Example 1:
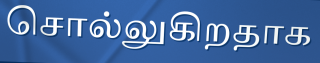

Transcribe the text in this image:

சொல்லுகிறதாக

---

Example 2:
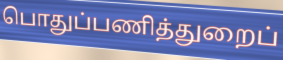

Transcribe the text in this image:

பொதுப்பணித்துறைப்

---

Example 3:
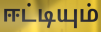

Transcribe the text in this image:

ஈட்டியும்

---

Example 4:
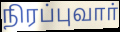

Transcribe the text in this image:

நிரப்புவார்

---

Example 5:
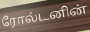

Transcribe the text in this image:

ரோல்டனின்